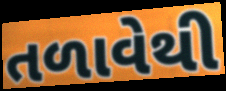
તળાવેથી